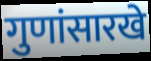
गुणांसारखे